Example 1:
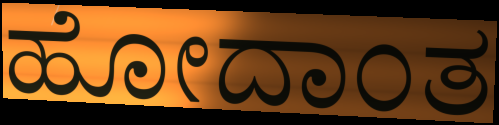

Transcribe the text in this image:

ಹೋದಾಂತ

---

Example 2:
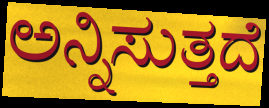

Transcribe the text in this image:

ಅನ್ನಿಸುತ್ತದೆ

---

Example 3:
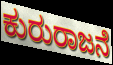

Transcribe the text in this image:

ಕುರುರಾಜನೆ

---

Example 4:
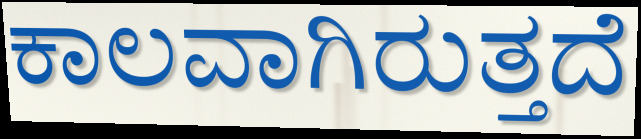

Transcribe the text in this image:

ಕಾಲವಾಗಿರುತ್ತದೆ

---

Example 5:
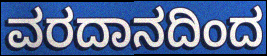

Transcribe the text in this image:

ವರದಾನದಿಂದ